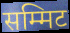
सम्मिट